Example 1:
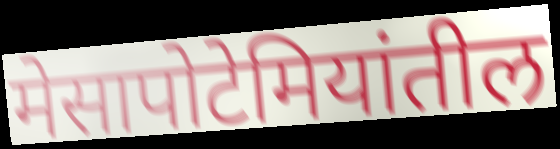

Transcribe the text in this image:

मेसापोटेमियांतील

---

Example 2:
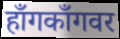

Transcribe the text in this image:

हाँगकाँगवर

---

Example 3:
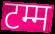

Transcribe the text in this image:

टम्म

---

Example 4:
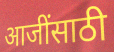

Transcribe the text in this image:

आजींसाठी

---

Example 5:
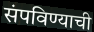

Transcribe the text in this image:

संपविण्याची